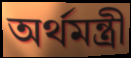
অর্থমন্ত্রী